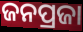
ଜନପ୍ରଜା